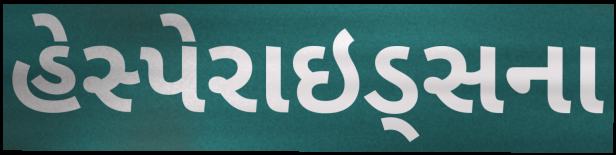
હેસ્પેરાઇડ્સના